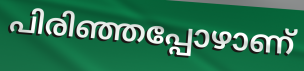
പിരിഞ്ഞപ്പോഴാണ്